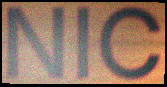
NIC